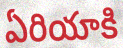
ఏరియాకి